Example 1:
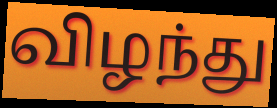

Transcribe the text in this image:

விழந்து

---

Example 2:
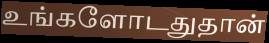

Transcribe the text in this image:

உங்களோடதுதான்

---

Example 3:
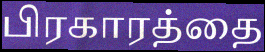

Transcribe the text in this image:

பிரகாரத்தை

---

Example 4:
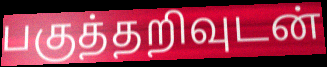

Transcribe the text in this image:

பகுத்தறிவுடன்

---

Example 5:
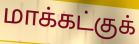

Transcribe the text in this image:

மாக்கட்குக்